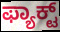
ಫ್ಯಾಕ್ಟ್